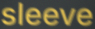
sleeve